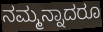
ನಮ್ಮನ್ನಾದರೂ